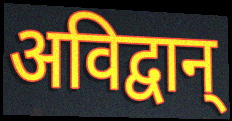
अविद्वान्